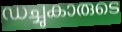
ഡച്ചുകാരുടെ